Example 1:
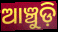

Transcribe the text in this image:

ଆଞ୍ଚୁଡ଼ି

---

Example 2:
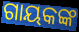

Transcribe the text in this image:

ଗାୟକଙ୍କ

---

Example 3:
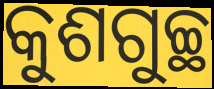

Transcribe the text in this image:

କୁଶଗୁଚ୍ଛ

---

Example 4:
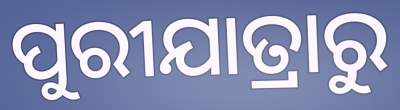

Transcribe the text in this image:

ପୁରୀଯାତ୍ରାରୁ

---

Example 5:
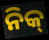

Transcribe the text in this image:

ନିକ୍